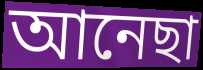
আনেছা